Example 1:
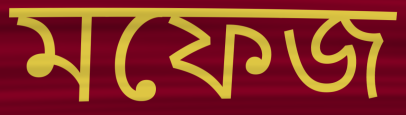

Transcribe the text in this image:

মফেজ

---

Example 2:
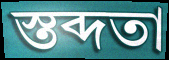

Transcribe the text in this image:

স্তব্দতা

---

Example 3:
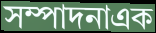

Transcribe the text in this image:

সম্পাদনাএক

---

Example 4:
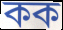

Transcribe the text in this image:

কক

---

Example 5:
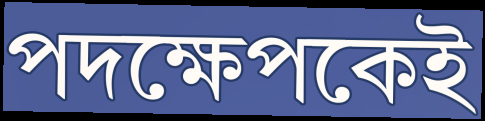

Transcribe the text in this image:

পদক্ষেপকেই